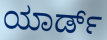
ಯಾರ್ಡ್